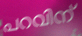
പറവിന്